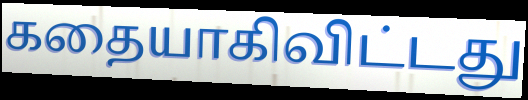
கதையாகிவிட்டது